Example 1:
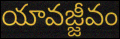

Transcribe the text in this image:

యావజ్జీవం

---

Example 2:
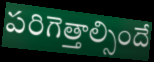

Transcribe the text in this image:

పరిగెత్తాల్సిందే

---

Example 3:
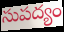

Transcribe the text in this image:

సుపద్యం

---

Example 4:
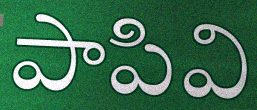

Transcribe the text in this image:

పాపివి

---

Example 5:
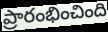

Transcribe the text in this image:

ప్రారంభించింది